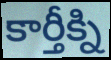
కార్తీక్ని